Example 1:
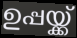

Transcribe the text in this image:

ഉപ്പയ്ക്ക്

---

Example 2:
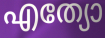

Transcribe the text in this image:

എത്യോ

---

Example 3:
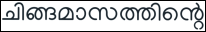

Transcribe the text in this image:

ചിങ്ങമാസത്തിന്റെ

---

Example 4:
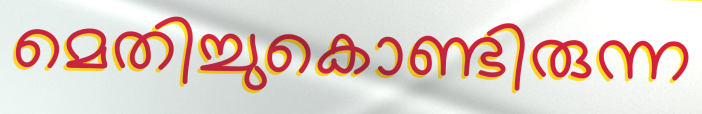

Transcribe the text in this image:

മെതിച്ചുകൊണ്ടിരുന്ന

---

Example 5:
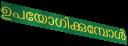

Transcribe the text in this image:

ഉപയോഗിക്കുമ്പോൾ